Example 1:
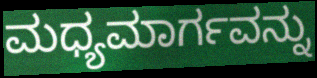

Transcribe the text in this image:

ಮಧ್ಯಮಾರ್ಗವನ್ನು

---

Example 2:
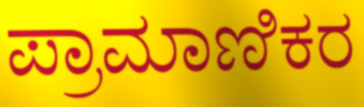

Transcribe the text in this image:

ಪ್ರಾಮಾಣಿಕರ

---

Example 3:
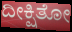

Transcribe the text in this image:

ದೀಕ್ಷಿತೋ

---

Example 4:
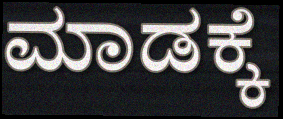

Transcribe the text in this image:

ಮಾಡಕ್ಕೆ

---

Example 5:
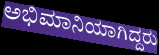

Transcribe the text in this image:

ಅಭಿಮಾನಿಯಾಗಿದ್ದರು